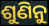
ଶୁଣିନୁ